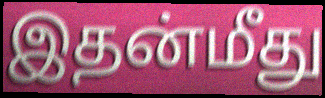
இதன்மீது